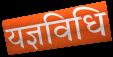
यज्ञविधि